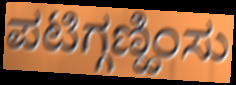
ಪಟಿಗ್ಗಣ್ಹಿಂಸು